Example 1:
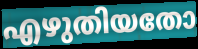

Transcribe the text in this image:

എഴുതിയതോ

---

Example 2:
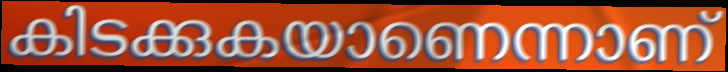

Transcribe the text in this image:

കിടക്കുകയാണെന്നാണ്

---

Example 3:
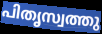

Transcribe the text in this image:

പിതൃസ്വത്തു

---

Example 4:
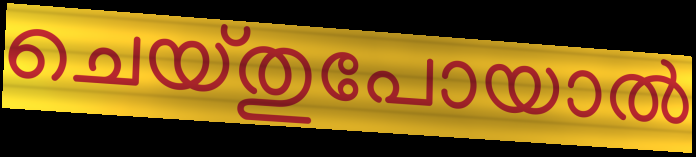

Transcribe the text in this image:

ചെയ്തുപോയാൽ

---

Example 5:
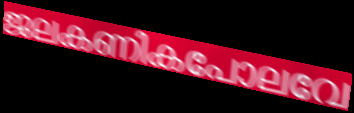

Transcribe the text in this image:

ജലകണികപോലവേ